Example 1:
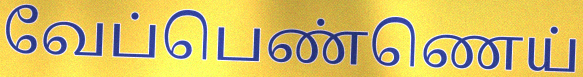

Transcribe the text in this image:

வேப்பெண்ணெய்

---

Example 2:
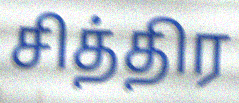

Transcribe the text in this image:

சித்திர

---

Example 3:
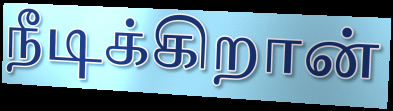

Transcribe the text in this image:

நீடிக்கிறான்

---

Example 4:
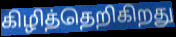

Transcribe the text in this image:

கிழித்தெறிகிறது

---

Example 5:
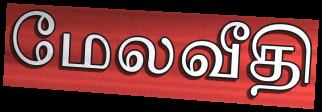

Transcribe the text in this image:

மேலவீதி